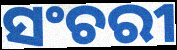
ସଂଚରୀ